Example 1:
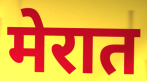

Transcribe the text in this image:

मेरात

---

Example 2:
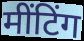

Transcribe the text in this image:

मींटिंग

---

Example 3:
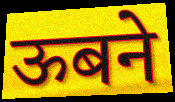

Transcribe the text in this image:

ऊबने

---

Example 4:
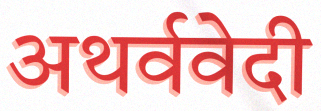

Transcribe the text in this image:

अथर्ववेदी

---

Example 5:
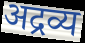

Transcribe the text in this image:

अद्रव्य